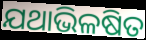
ଯଥାଭିଳଷିତ